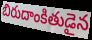
బిరుదాంకితుడైన